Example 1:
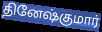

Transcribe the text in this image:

தினேஷ்குமார்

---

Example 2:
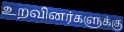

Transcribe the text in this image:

உறவினர்களுக்கு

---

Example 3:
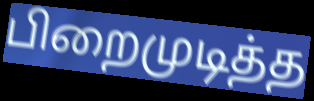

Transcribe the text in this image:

பிறைமுடித்த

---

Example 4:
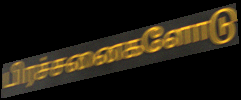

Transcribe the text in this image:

பிரச்சனைகளோடு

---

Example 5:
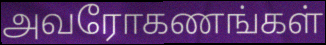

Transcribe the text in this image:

அவரோகணங்கள்